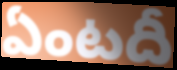
ఏంటదీ